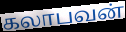
கலாபவன்